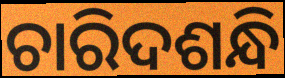
ଚାରିଦଶନ୍ଧି